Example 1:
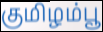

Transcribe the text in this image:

குமிழம்பூ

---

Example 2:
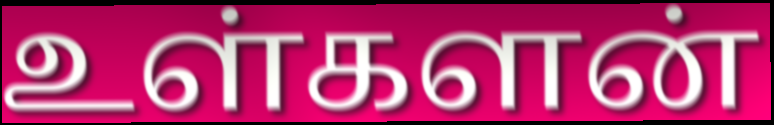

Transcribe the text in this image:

உள்களன்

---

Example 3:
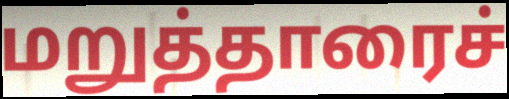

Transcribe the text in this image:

மறுத்தாரைச்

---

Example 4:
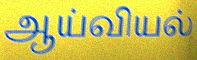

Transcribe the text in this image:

ஆய்வியல்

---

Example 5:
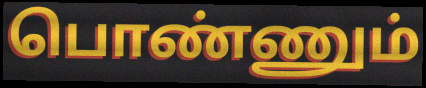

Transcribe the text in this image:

பொண்ணும்